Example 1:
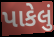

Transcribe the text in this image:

પાકેલું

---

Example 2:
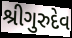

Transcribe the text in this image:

શ્રીગુરુદેવ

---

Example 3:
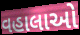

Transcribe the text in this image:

વહાલાઓ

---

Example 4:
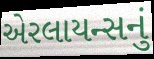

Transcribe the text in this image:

એરલાયન્સનું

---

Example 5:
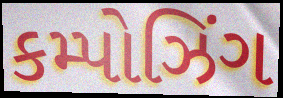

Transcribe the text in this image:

કમ્પોઝિંગ